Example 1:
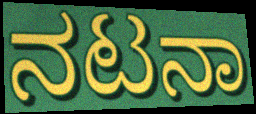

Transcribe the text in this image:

ನಟನಾ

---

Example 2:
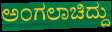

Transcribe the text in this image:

ಅಂಗಲಾಚಿದ್ದು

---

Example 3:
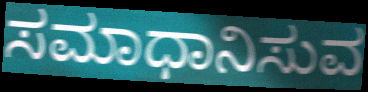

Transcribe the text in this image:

ಸಮಾಧಾನಿಸುವ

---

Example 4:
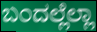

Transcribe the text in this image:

ಬಂದಲ್ಲೆಲ್ಲಾ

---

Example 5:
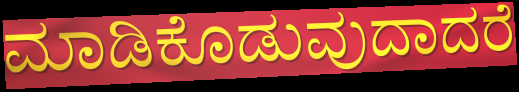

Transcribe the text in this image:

ಮಾಡಿಕೊಡುವುದಾದರೆ